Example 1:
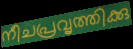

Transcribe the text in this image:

നീചപ്രവൃത്തിക്കു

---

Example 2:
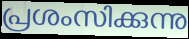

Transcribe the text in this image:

പ്രശംസിക്കുന്നു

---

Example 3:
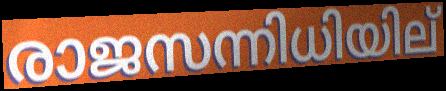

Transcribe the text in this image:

രാജസന്നിധിയില്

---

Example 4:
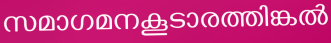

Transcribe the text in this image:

സമാഗമനകൂടാരത്തിങ്കൽ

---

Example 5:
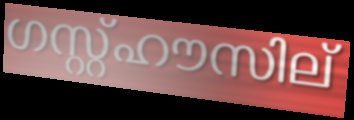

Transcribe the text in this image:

ഗസ്റ്റ്ഹൗസില്